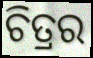
ଚିତ୍ରର